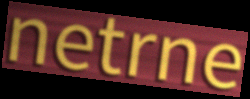
netrne